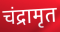
चंद्रामृत